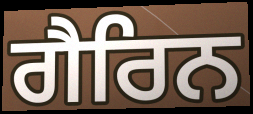
ਗੈਰਿਨ